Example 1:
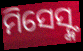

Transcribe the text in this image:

ମିସେସ୍ଙ୍କ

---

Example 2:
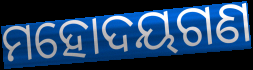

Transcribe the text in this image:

ମହୋଦୟଗଣ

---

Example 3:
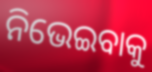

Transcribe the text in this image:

ନିଭେଇବାକୁ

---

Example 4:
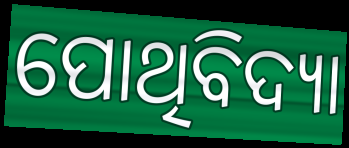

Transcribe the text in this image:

ପୋଥିବିଦ୍ୟା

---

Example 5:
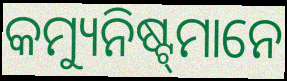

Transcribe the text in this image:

କମ୍ୟୁନିଷ୍ଟ୍‌ମାନେ